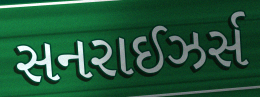
સનરાઈઝર્સ